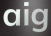
aig